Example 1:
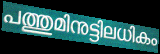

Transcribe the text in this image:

പത്തുമിനുട്ടിലധികം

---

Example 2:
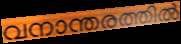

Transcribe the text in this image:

വനാന്തരത്തിൽ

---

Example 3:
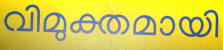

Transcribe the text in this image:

വിമുക്തമായി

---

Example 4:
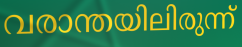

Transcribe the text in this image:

വരാന്തയിലിരുന്ന്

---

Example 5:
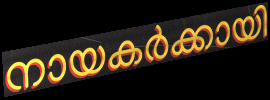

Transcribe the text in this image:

നായകർക്കായി